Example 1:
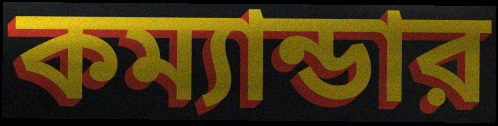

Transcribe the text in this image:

কম্যান্ডার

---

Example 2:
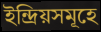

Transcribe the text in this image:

ইন্দ্রিয়সমূহে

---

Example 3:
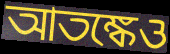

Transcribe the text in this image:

আতঙ্কেও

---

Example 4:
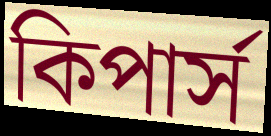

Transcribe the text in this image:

কিপার্স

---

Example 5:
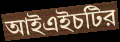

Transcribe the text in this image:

আইএইচটির